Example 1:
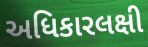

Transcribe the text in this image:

અધિકારલક્ષી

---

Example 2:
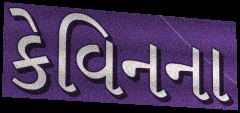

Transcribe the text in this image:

કેવિનના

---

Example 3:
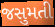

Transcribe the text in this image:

જસુમતી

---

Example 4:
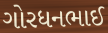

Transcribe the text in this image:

ગોરધનભાઈ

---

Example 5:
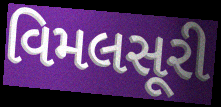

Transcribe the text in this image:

વિમલસૂરી